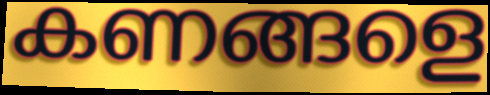
കണങ്ങളെ